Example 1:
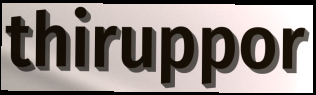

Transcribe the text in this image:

thiruppor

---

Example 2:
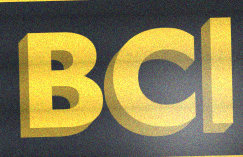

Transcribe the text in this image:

BCl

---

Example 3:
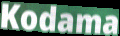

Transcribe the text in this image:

Kodama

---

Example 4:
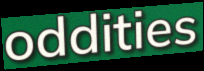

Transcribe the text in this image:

oddities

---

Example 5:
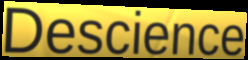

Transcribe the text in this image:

Descience